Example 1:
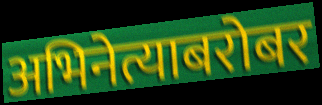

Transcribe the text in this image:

अभिनेत्याबरोबर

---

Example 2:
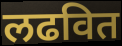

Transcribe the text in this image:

लढवित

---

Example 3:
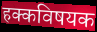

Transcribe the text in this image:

हक्कविषयक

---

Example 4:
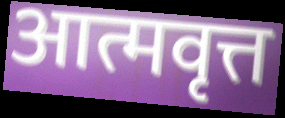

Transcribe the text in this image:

आत्मवृत्त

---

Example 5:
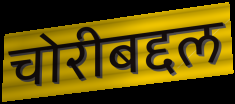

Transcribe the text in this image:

चोरीबद्दल